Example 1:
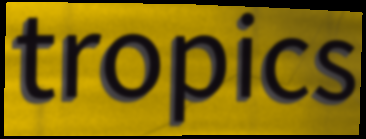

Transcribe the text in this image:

tropics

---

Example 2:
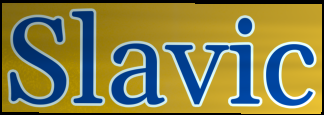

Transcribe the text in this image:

Slavic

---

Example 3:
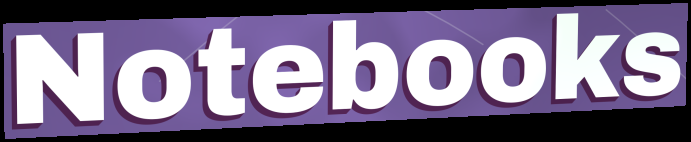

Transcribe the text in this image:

Notebooks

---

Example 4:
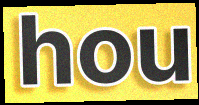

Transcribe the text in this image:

hou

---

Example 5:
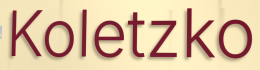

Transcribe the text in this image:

Koletzko